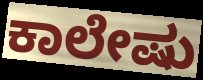
ಕಾಲೇಷು